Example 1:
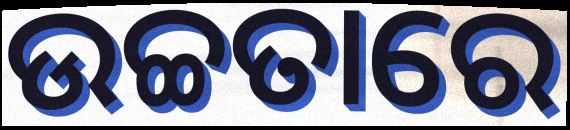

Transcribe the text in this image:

ଉଚ୍ଚତାରେ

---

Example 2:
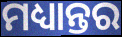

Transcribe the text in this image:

ମଧ୍ୟାନ୍ତର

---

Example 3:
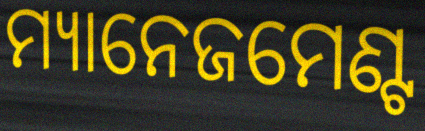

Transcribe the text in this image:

ମ୍ୟାନେଜମେଣ୍ଟ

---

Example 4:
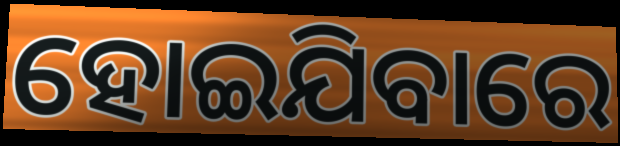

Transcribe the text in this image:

ହୋଇଯିବାରେ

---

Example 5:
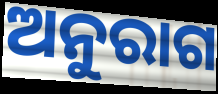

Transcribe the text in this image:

ଅନୁରାଗ